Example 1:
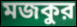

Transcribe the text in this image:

মজকুর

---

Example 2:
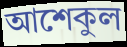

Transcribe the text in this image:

আশেকুল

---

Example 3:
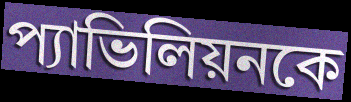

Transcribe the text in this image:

প্যাভিলিয়নকে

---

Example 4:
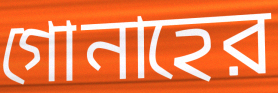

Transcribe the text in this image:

গোনাহের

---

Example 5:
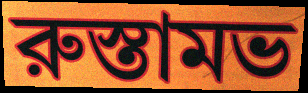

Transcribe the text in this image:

রুস্তামভ